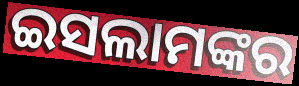
ଇସଲାମଙ୍କର